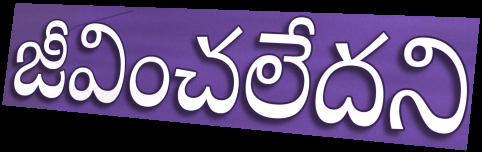
జీవించలేదని